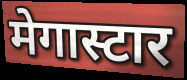
मेगास्टार